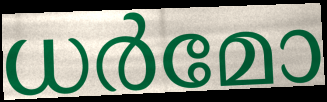
ധർമോ